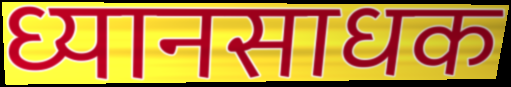
ध्यानसाधक